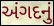
અંગદનું